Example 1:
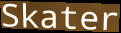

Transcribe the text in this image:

Skater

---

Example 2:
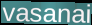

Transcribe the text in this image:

vasanai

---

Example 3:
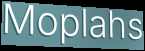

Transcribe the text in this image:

Moplahs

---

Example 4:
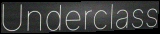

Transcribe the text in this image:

Underclass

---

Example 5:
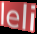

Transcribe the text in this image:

leli